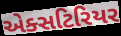
એક્સટિરિયર